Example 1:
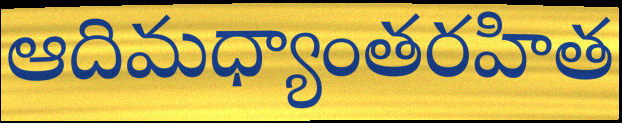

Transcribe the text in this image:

ఆదిమధ్యాంతరహిత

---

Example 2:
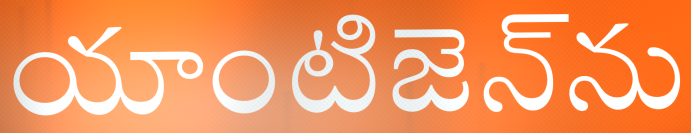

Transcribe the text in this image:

యాంటిజెన్‌ను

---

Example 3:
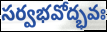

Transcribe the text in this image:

సర్వభవోద్భవః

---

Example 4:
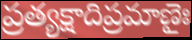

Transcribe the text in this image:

ప్రత్యక్షాదిప్రమాణైః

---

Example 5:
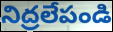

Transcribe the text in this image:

నిద్రలేపండి